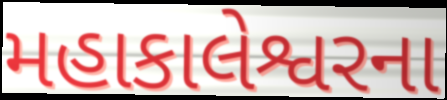
મહાકાલેશ્વરના